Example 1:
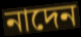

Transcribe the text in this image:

নাদেন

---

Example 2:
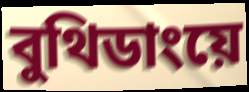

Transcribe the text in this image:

বুথিডাংয়ে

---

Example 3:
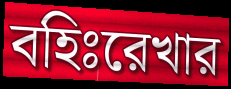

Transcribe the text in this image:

বহিঃরেখার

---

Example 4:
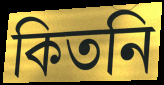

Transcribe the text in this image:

কিতনি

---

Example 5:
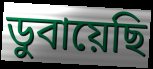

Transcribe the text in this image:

ডুবায়েছি